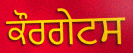
ਕੌਰਗੇਟਸ